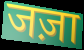
जज़ा